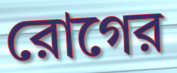
রোগের